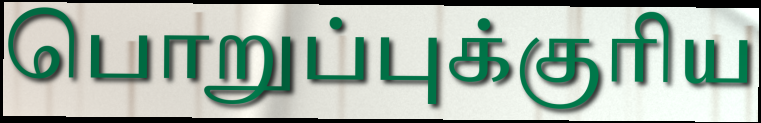
பொறுப்புக்குரிய